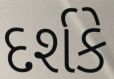
દર્શકે